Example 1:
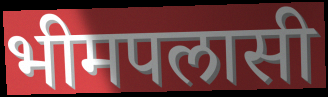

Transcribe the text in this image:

भीमपलासी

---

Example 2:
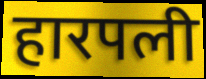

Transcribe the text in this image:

हारपली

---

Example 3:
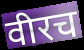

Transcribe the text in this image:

वीरच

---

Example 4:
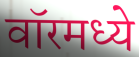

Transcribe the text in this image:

वॉरमध्ये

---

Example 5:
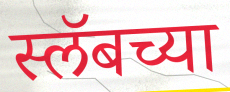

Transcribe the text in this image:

स्लॅबच्या